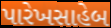
પારેખસાહેબ